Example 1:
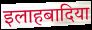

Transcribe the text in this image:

इलाहबादिया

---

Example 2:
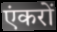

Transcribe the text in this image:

एंकरों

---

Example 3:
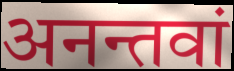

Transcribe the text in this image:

अनन्तवां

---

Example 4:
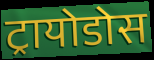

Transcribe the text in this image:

ट्रायोडोस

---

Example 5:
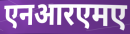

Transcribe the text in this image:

एनआरएमए